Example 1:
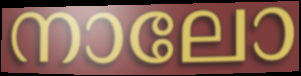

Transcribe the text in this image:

നാലോ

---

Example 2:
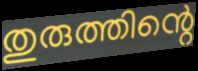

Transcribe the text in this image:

തുരുത്തിന്റെ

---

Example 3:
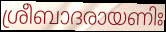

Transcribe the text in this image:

ശ്രീബാദരായണിഃ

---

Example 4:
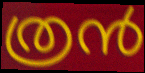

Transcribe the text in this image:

ത്രൻ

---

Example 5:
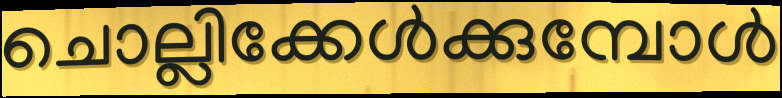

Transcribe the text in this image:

ചൊല്ലിക്കേൾക്കുമ്പോൾ